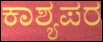
ಕಾಶ್ಯಪರ